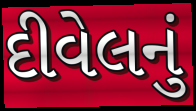
દીવેલનું